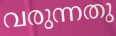
വരുന്നതു